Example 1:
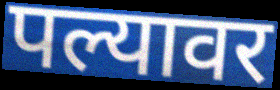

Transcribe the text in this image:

पल्यावर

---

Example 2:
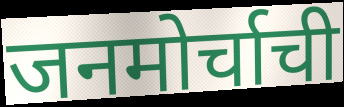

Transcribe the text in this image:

जनमोर्चाची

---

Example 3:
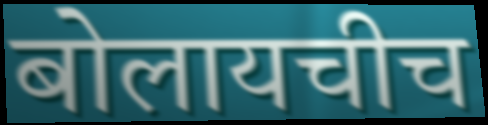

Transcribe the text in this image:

बोलायचीच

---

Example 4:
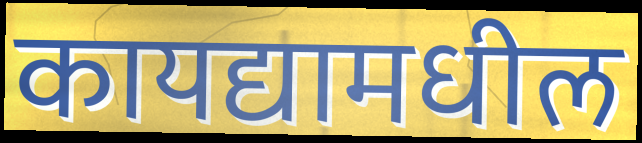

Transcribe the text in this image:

कायद्यामधील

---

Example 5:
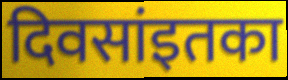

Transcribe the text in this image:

दिवसांइतका